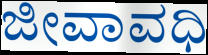
ಜೀವಾವಧಿ